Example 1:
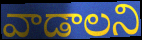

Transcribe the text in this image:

వాడాలని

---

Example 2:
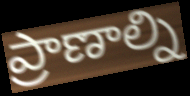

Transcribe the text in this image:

ప్రాణాల్ని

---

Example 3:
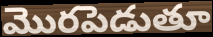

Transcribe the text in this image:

మొరపెడుతూ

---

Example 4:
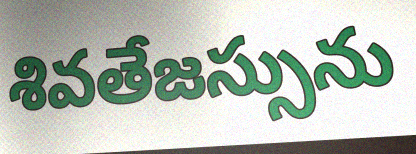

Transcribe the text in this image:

శివతేజస్సును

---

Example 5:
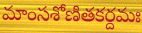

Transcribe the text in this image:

మాంసశోణితకర్దమః